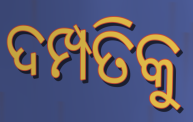
ଦମ୍ପତିକୁ